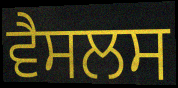
ਵੈਸਲਸ